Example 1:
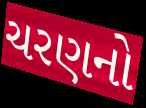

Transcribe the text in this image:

ચરણનો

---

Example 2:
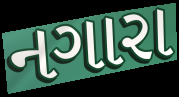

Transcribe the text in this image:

નગારા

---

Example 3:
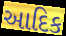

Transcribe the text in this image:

આદિક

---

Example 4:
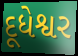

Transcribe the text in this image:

દૂધેશ્વર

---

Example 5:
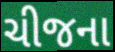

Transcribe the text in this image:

ચીજના